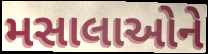
મસાલાઓને